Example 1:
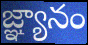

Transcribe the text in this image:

జ్ఞ్యానం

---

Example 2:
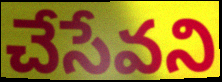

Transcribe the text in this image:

చేసేవని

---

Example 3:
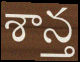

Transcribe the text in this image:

శాన్త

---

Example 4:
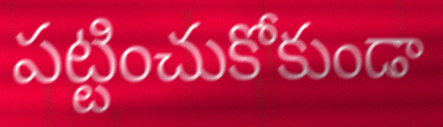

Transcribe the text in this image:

పట్టించుకోకుండా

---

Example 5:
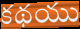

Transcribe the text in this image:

కథయు